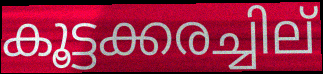
കൂട്ടക്കരച്ചില്